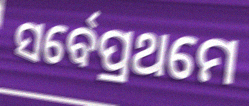
ସର୍ବେପ୍ରଥମେ